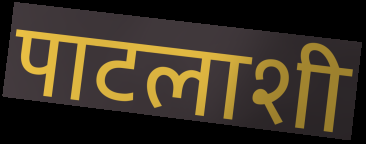
पाटलाशी